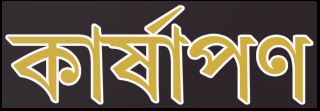
কার্ষাপণ